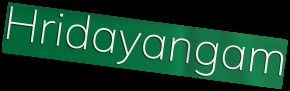
Hridayangam